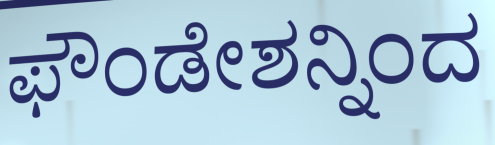
ಫೌಂಡೇಶನ್ನಿಂದ